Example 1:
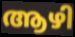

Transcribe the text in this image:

ആഴി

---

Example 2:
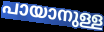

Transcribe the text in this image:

പായാനുള്ള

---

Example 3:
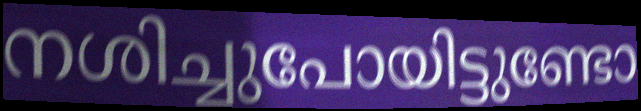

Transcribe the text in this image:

നശിച്ചുപോയിട്ടുണ്ടോ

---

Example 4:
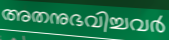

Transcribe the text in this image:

അതനുഭവിച്ചവർ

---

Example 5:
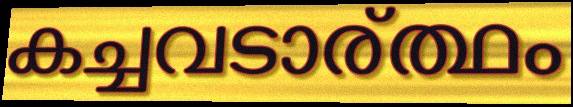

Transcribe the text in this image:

കച്ചവടാര്ത്ഥം